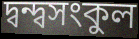
দ্বন্দ্বসংকুল